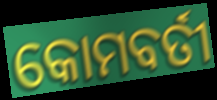
କୋମବର୍ତୀ